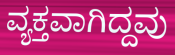
ವ್ಯಕ್ತವಾಗಿದ್ದವು